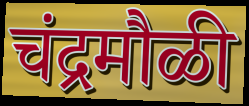
चंद्रमौळी